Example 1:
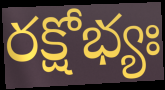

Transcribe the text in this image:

రక్షోభ్యః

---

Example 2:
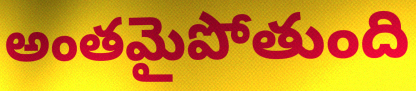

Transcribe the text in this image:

అంతమైపోతుంది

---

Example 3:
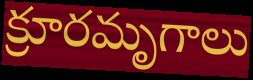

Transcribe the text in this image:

క్రూరమృగాలు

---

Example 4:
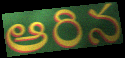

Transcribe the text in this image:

ఆరిన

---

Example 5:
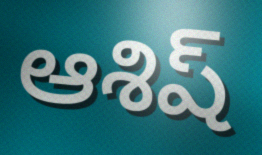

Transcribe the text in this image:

ఆశిష్